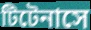
টিটেনাসে